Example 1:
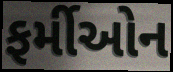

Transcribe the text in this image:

ફર્મીઓન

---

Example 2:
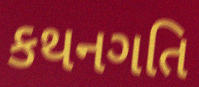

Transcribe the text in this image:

કથનગતિ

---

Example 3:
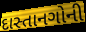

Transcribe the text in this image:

દાસ્તાનગોની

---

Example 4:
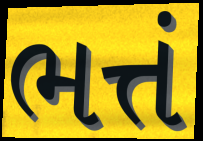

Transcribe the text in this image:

ભત્તં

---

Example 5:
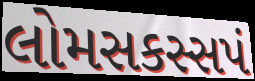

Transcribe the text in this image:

લોમસકસ્સપં